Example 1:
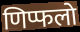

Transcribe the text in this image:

णिप्फलो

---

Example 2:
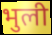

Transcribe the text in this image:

भुली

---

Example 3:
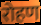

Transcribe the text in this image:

रोहण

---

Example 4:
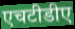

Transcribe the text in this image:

एचटीडीए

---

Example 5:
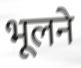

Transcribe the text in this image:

भूलने